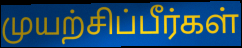
முயற்சிப்பீர்கள்